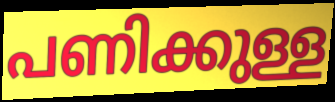
പണിക്കുള്ള